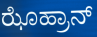
ಝೊಹ್ರಾನ್